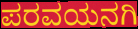
ಪರವಯನಗಿ